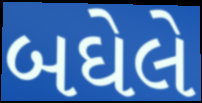
બઘેલે